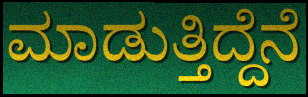
ಮಾಡುತ್ತಿದ್ದೆನೆ